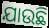
ଯାଉଛି